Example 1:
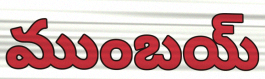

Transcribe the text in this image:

ముంబయ్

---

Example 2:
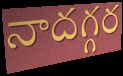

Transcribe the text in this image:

నాదగ్గర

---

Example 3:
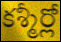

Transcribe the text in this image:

కశ్మీర్లో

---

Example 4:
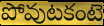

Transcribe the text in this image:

పోవుటకంటె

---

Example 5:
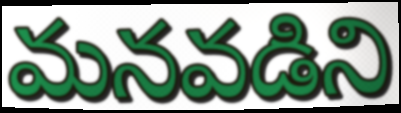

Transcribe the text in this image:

మనవడిని